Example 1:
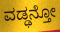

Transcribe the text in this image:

ವಡ್ಢನ್ತೋ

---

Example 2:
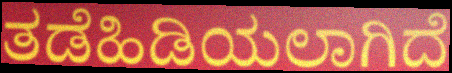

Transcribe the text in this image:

ತಡೆಹಿಡಿಯಲಾಗಿದೆ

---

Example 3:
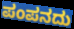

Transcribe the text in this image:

ಪಂಪನದು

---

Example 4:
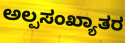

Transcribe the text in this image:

ಅಲ್ಪಸಂಖ್ಯಾತರ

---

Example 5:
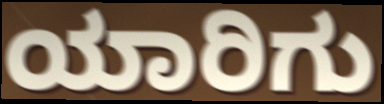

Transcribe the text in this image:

ಯಾರಿಗು